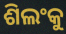
ଶିଲଂକୁ